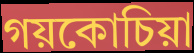
গয়কোচিয়া